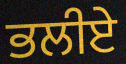
ਭਲੀਏ